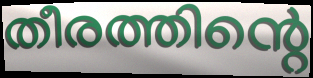
തീരത്തിന്റെ